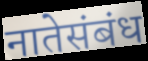
नातेसंबंध